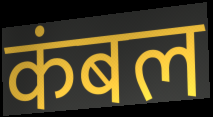
कंबल